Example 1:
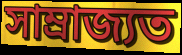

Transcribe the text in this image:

সাম্ৰাজ্যত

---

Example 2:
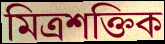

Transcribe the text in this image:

মিত্ৰশক্তিক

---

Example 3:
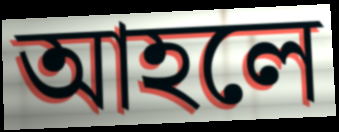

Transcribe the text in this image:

আহলে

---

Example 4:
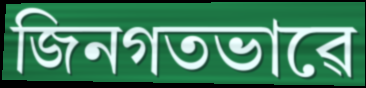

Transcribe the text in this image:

জিনগতভাৱে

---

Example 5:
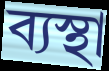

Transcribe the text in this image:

ব্যস্থা